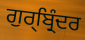
ਗੁਰ੍ਬ੍ਰਿੰਦਰ